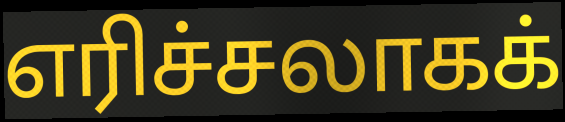
எரிச்சலாகக்